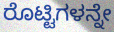
ರೊಟ್ಟಿಗಳನ್ನೇ